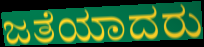
ಜತೆಯಾದರು